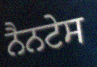
ਨੈਨਟੇਸ